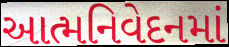
આત્મનિવેદનમાં